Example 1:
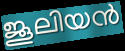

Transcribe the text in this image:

ജൂലിയൻ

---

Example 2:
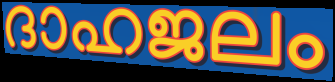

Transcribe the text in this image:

ദാഹജലം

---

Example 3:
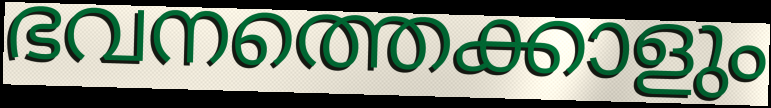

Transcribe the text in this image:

ഭവനത്തെക്കാളും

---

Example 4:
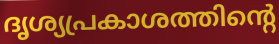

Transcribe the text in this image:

ദൃശ്യപ്രകാശത്തിന്റെ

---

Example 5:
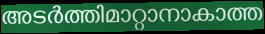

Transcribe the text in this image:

അടർത്തിമാറ്റാനാകാത്ത